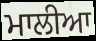
ਮਾਲੀਆ